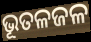
ଭୂତଳଜଳ